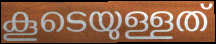
കൂടെയുള്ളത്